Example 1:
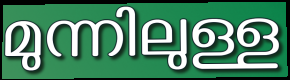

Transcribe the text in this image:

മുന്നിലുള്ള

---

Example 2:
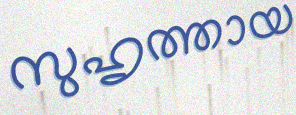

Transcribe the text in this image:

സുഹൃത്തായ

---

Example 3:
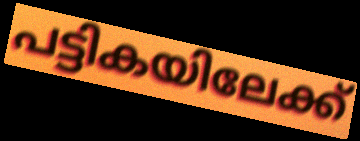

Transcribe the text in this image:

പട്ടികയിലേക്ക്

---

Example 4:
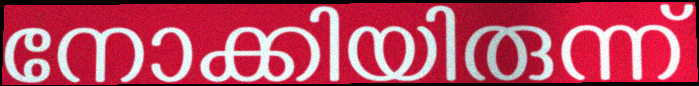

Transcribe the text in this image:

നോക്കിയിരുന്ന്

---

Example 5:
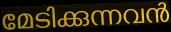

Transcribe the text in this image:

മേടിക്കുന്നവൻ